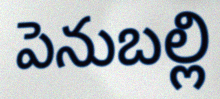
పెనుబల్లి